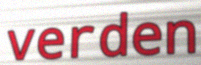
verden